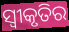
ସ୍ୱୀକୃତିର